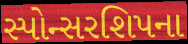
સ્પોન્સરશિપના